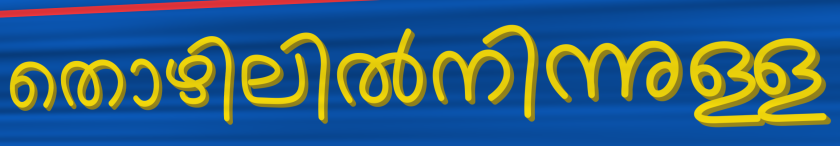
തൊഴിലിൽനിന്നുള്ള